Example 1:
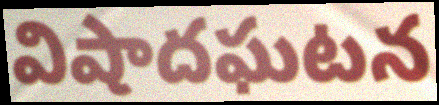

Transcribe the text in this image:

విషాదఘటన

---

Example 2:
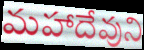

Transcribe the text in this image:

మహాదేవుని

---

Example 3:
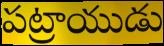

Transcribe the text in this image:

పట్రాయుడు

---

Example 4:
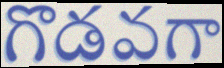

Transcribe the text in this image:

గొడవగా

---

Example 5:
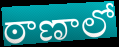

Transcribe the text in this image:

ఠాణాలో